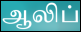
ஆலிப்